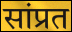
सांप्रत